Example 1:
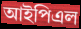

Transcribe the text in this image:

আইপিএল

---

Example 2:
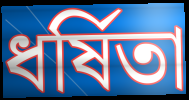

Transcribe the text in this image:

ধৰ্ষিতা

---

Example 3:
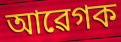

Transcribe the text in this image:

আৱেগক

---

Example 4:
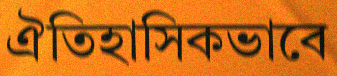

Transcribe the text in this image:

ঐতিহাসিকভাবে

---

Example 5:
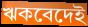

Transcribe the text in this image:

ঋকবেদেই